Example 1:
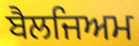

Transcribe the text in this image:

ਬੈਲਜਿਅਮ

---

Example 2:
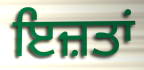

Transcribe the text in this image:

ਇਜ਼ਤਾਂ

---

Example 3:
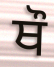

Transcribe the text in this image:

ਥੌ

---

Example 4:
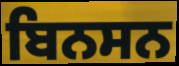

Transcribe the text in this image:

ਬਿਨਸਨ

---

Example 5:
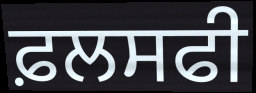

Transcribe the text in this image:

ਫ਼ਲਸਫੀ